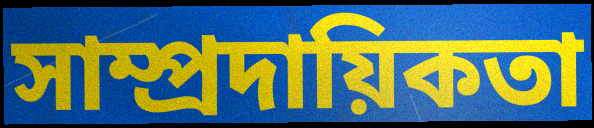
সাম্প্ৰদায়িকতা